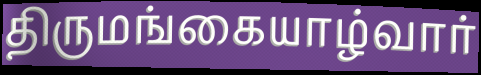
திருமங்கையாழ்வார்